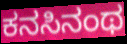
ಕನಸಿನಂಥ